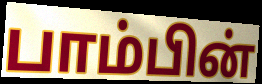
பாம்பின்